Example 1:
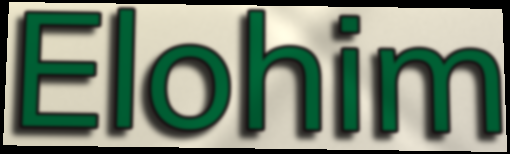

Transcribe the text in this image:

Elohim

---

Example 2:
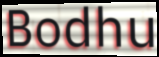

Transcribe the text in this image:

Bodhu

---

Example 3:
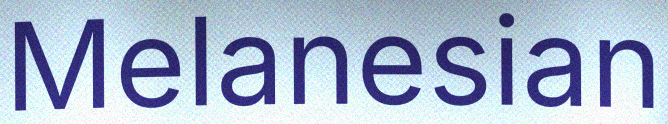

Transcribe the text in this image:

Melanesian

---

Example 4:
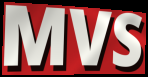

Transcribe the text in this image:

MVS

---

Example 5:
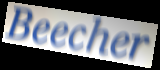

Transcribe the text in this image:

Beecher